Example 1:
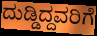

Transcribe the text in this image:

ದುಡ್ಡಿದ್ದವರಿಗೆ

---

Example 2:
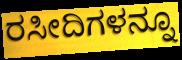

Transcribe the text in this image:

ರಸೀದಿಗಳನ್ನೂ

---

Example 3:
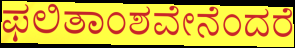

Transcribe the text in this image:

ಫಲಿತಾಂಶವೇನೆಂದರೆ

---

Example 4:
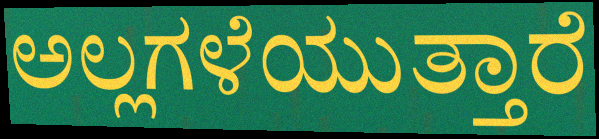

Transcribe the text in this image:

ಅಲ್ಲಗಳೆಯುತ್ತಾರೆ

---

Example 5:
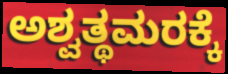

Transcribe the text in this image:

ಅಶ್ವತ್ಥಮರಕ್ಕೆ